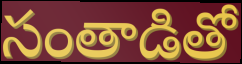
సంతాడితో